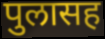
पुलासह